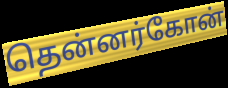
தென்னர்கோன்